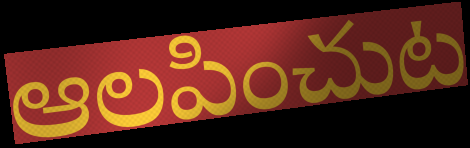
ఆలపించుట